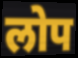
लोप